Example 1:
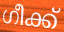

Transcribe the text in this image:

ഗീക്ക്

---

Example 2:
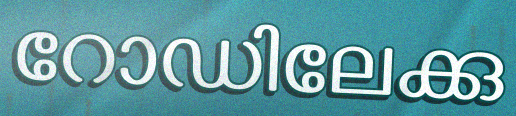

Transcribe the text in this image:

റോഡിലേക്കു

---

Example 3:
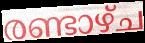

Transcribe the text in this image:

രണ്ടാഴ്ച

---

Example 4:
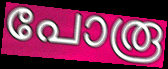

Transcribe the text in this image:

പോരൂ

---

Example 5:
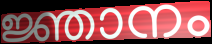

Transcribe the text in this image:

ജ്ഞാനം